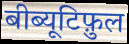
बीब्यूटिफ़ुल